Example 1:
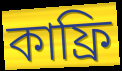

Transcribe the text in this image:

কাফ্রি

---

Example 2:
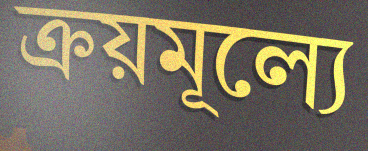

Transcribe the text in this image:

ক্রয়মূল্যে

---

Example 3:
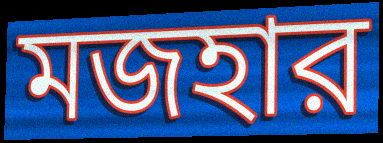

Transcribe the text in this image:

মজহার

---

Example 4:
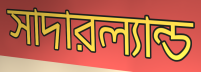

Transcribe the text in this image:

সাদারল্যান্ড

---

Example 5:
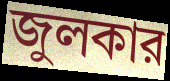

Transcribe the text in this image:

জুলকার